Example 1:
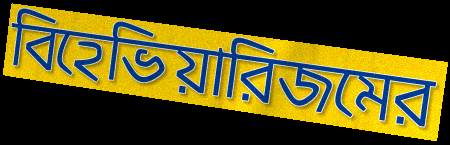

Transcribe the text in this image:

বিহেভিয়ারিজমের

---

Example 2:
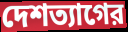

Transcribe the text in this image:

দেশত্যাগের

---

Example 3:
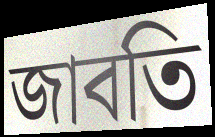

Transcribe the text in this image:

জাবতি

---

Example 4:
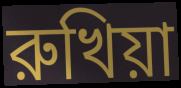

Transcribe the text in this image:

রুখিয়া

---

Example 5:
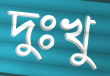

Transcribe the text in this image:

দুঃখু